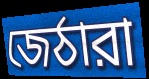
জেঠারা